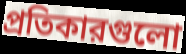
প্রতিকারগুলো